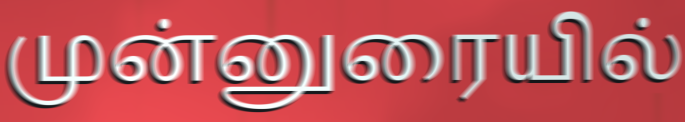
முன்னுரையில்